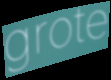
grote